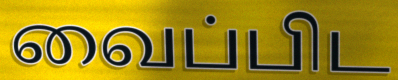
வைப்பிட